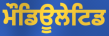
ਮੌਡਿਊਲੇਟਿਡ